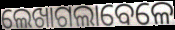
ଲେଖାଗଲାବେଳେ